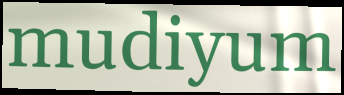
mudiyum